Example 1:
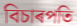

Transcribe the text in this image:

বিচাৰপতি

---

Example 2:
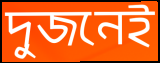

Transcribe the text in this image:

দুজনেই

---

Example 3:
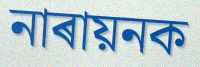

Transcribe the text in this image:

নাৰায়নক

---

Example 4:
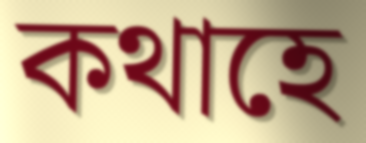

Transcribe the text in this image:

কথাহে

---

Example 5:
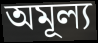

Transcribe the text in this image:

অমূল্য